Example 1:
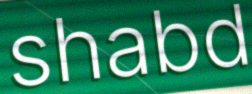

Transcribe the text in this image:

shabd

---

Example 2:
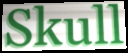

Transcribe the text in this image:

Skull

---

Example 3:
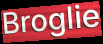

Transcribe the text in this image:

Broglie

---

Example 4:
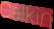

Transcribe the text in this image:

Calkin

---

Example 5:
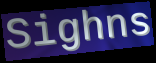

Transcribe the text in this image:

Sighns